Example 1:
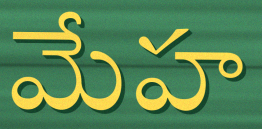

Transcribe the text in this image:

మేహ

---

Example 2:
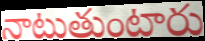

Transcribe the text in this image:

నాటుతుంటారు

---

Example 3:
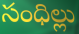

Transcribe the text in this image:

సంధిల్లు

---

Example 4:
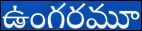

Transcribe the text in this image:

ఉంగరమూ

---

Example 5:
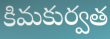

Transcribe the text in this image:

కిమకుర్వత